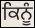
ਕਿਨੂੰ